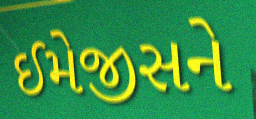
ઈમેજીસને